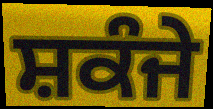
ਸ਼ਕੰਜੇ